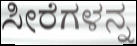
ಸೀರೆಗಳನ್ನ